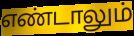
எண்டாலும்